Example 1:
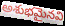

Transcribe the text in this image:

అశుభమైనవి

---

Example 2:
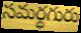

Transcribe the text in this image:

సమర్థగురు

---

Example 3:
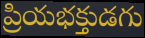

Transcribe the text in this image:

ప్రియభక్తుడగు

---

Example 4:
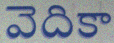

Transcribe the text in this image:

వెదికా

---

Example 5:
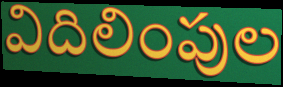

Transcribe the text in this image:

విదిలింపుల